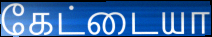
கேட்டையா